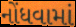
નોંધવામાં